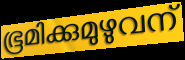
ഭൂമിക്കുമുഴുവന്